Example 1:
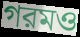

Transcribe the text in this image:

গরমও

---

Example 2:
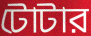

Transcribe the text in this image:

টোটার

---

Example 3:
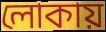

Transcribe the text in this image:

লোকায়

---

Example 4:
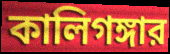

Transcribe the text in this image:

কালিগঙ্গার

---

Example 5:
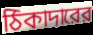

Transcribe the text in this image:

ঠিকাদারের